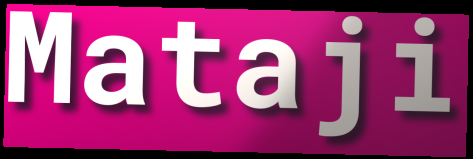
Mataji